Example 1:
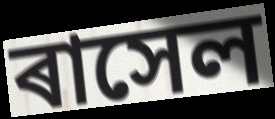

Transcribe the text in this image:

ৰাসেল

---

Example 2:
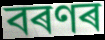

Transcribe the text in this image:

বৰণৰ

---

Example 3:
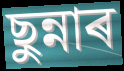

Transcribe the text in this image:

ছুন্নাৰ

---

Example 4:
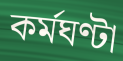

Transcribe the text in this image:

কৰ্মঘণ্টা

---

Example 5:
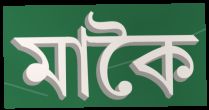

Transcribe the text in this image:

মাকৈ